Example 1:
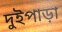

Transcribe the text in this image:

দুইপাড়া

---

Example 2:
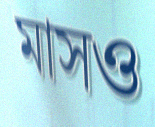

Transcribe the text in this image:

মাসও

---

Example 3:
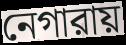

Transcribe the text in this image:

নেগারায়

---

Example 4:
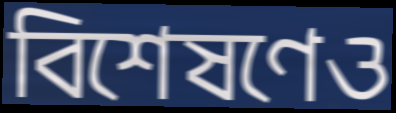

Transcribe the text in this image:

বিশেষণেও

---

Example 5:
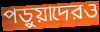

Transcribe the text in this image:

পড়ুয়াদেরও